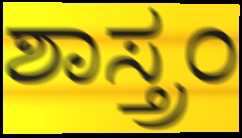
ಶಾಸ್ತ್ರಂ